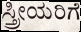
ಸ್ತ್ರೀಯರಿಗೆ